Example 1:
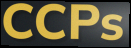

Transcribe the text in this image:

CCPs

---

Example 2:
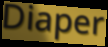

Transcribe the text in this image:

Diaper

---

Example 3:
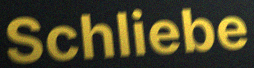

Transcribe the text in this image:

Schliebe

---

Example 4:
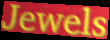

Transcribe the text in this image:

Jewels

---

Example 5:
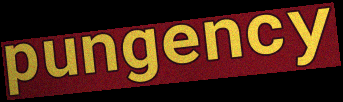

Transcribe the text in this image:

pungency